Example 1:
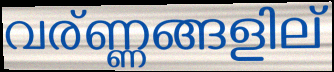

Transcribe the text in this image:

വര്ണ്ണങ്ങളില്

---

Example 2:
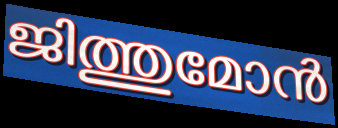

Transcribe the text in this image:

ജിത്തുമോൻ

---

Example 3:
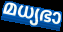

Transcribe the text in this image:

മധ്യഭാ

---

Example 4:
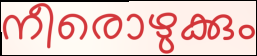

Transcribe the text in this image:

നീരൊഴുക്കും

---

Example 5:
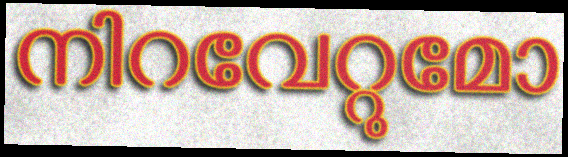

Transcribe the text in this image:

നിറവേറ്റുമോ